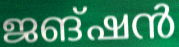
ജങ്ഷൻ